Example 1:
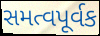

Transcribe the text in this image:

સમત્વપૂર્વક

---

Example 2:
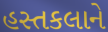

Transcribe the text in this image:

હસ્તકલાને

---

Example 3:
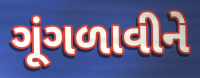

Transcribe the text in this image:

ગૂંગળાવીને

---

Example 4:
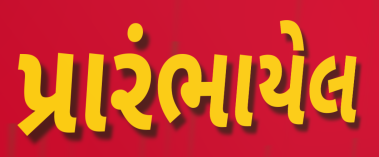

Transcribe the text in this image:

પ્રારંભાયેલ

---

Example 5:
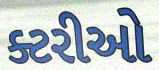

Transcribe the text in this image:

ક્ટરીઓ